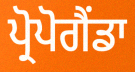
ਪ੍ਰੋਪੋਗੈਂਡਾ